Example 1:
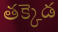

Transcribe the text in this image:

తక్కెడ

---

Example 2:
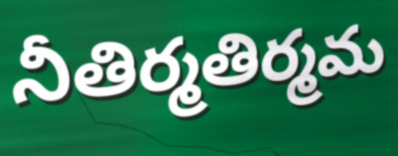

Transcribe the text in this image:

నీతిర్మతిర్మమ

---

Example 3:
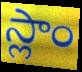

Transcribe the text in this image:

స్లాం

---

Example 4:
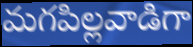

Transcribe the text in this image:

మగపిల్లవాడిగా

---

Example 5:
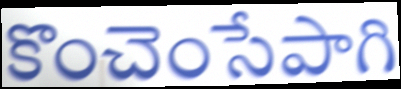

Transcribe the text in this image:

కొంచెంసేపాగి